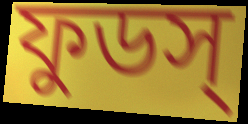
ফুডস্